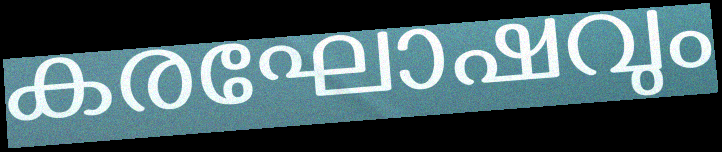
കരഘോഷവും